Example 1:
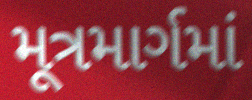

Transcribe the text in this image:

મૂત્રમાર્ગમાં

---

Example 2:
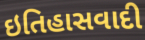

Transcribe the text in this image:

ઇતિહાસવાદી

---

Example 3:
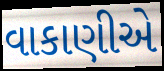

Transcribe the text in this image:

વાકાણીએ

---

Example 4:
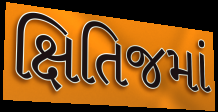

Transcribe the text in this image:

ક્ષિતિજમાં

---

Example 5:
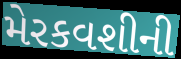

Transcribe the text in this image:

મેરકવશીની